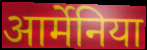
आर्मेनिया